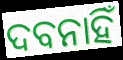
ଦବନାହିଁ